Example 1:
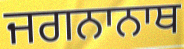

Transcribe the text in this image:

ਜਗਨਾਨਾਥ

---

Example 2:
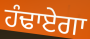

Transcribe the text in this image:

ਹੰਢਾਏਗਾ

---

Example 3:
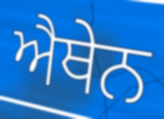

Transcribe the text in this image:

ਐਥੇਨ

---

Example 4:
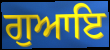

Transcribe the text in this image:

ਗੁਆਇ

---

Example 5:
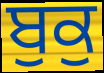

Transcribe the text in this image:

ਬੁਕੁ